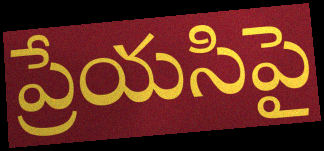
ప్రేయసిపై